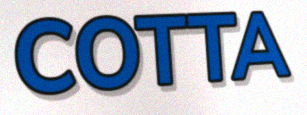
COTTA